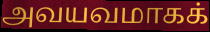
அவயவமாகக்